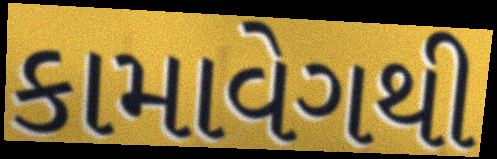
કામાવેગથી